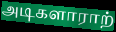
அடிகளாராற்